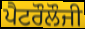
ਪੈਟਰੌਲੌਜੀ